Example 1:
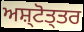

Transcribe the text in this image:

ਅਸ਼੍ਟੋਤ੍ਤਰ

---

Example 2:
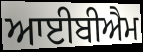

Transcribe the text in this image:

ਆਈਬੀਐਮ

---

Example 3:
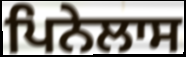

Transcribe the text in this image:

ਪਿਨੇਲਾਸ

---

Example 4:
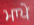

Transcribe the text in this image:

ਮਾਪੇ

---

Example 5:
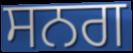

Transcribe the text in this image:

ਸਨਗ